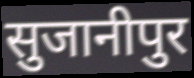
सुजानीपुर